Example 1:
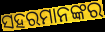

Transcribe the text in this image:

ସହରମାନଙ୍କର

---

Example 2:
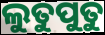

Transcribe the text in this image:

ଲୁତୁପୁତୁ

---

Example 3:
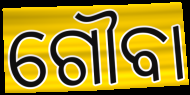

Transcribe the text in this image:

ଗୌବା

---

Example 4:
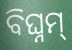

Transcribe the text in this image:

ବିଘ୍ନମ୍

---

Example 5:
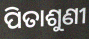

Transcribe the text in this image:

ପିତାଶୁଣୀ